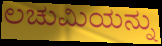
ಲಚುಮಿಯನ್ನು